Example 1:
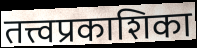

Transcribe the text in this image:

तत्त्वप्रकाशिका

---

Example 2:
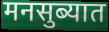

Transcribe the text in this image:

मनसुब्यात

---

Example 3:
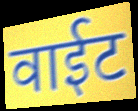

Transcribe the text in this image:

वाईट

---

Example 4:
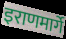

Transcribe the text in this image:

इराणमार्गे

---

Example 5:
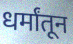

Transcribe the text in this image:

धर्मांतून